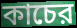
কাচের